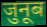
जुनूब